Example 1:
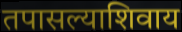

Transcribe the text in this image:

तपासल्याशिवाय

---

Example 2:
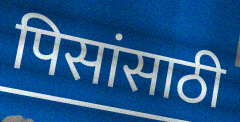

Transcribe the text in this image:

पिसांसाठी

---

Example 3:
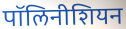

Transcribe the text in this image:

पॉलिनीशियन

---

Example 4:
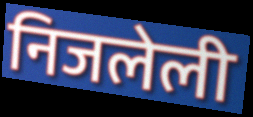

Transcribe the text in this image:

निजलेली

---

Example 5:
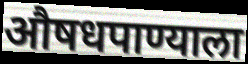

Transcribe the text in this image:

औषधपाण्याला